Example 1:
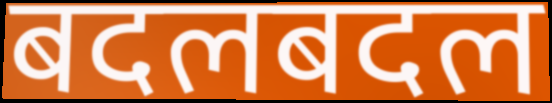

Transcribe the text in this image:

बदलबदल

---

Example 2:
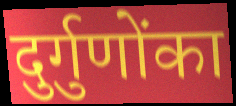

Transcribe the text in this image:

दुर्गुणोंका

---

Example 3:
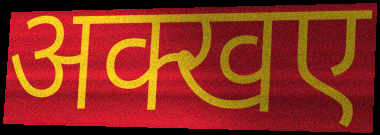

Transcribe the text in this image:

अक्खए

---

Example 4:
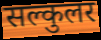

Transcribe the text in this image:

सल्कुलर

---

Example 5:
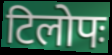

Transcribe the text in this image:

टिलोपः